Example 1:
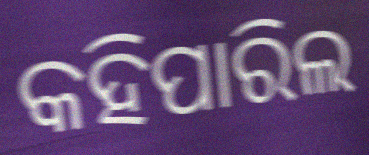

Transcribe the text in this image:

କହିପାରିଲ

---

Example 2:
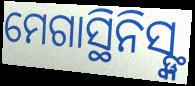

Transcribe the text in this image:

ମେଗାସ୍ଥିନିସ୍ଙ୍କ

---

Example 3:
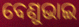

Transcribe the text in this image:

ବେଣୁଭାଇ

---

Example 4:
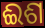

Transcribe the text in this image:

ଈଶ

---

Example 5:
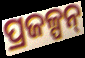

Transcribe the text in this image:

ପ୍ରଜଳ୍ପନ୍